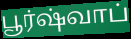
பூர்ஷ்வாப்